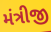
મંત્રીજી